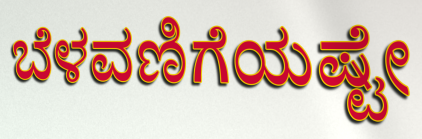
ಬೆಳವಣಿಗೆಯಷ್ಟೇ